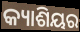
କ୍ୟାଶିୟର